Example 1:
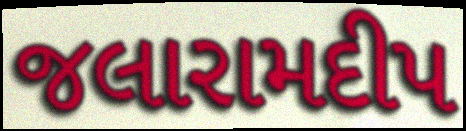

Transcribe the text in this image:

જલારામદીપ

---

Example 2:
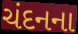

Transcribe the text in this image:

ચંદનના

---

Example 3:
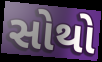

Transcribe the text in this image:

સોથો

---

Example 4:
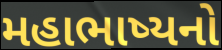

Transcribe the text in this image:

મહાભાષ્યનો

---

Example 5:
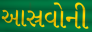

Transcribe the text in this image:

આસ્રવોની